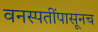
वनस्पतींपासूनच